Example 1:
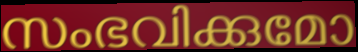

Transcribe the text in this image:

സംഭവിക്കുമോ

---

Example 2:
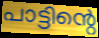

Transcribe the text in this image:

പാട്ടിന്റെ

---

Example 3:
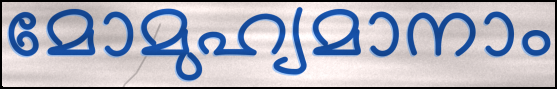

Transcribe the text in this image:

മോമുഹ്യമാനാം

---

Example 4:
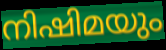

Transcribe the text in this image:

നിഷിമയും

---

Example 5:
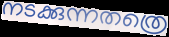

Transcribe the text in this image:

നടക്കുന്നതത്രെ